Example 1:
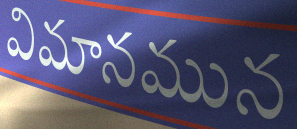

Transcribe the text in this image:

విమానమున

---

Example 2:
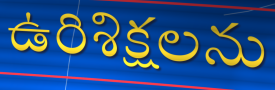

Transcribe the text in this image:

ఉరిశిక్షలను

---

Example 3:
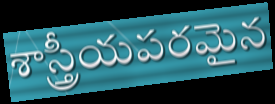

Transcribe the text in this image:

శాస్త్రీయపరమైన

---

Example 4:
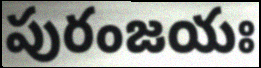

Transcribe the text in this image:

పురంజయః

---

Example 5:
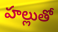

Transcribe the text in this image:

హల్లుతో